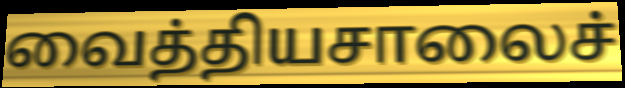
வைத்தியசாலைச்